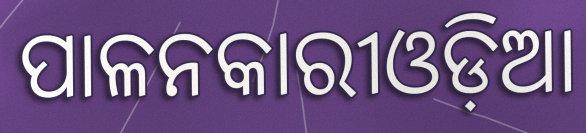
ପାଳନକାରୀଓଡ଼ିଆ